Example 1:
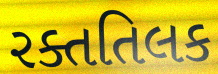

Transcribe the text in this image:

રક્તતિલક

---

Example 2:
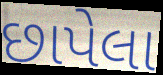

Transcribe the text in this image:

છાપેલા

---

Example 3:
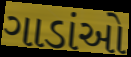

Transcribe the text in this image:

ગાડાંઓ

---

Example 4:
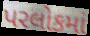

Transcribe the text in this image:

પરલોકમાં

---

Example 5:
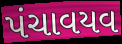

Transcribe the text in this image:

પંચાવયવ